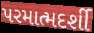
પરમાત્મદર્શી